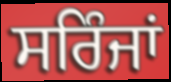
ਸਰਿੰਜਾਂ